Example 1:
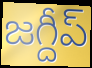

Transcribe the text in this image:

జగ్దీప్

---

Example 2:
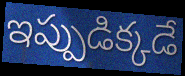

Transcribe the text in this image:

ఇప్పుడిక్కడే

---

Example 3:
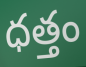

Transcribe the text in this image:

ధత్తం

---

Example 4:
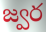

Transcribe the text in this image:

జ్వర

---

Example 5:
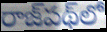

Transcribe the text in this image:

రాజ్‌పథ్‌లో